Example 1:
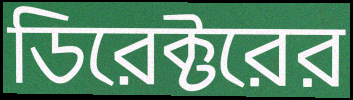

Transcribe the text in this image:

ডিরেক্টরের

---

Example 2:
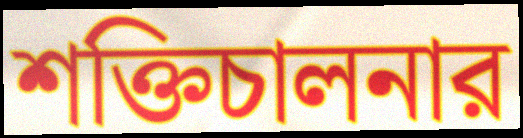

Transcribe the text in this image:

শক্তিচালনার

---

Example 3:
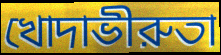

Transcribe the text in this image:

খোদাভীরুতা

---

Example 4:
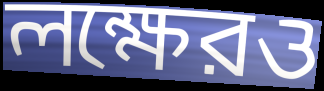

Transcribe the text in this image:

লক্ষেরও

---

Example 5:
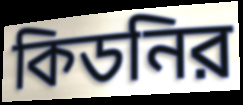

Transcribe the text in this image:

কিডনির